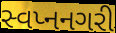
સ્વપ્નનગરી